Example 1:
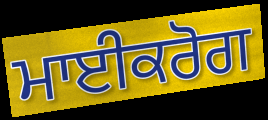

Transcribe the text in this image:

ਮਾਈਕਰੋਗ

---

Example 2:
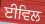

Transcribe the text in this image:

ਈਵਿਲ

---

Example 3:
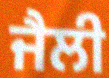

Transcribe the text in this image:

ਜੈਲੀ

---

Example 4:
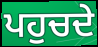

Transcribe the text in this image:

ਪਹੁਚਦੇ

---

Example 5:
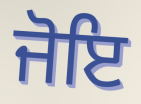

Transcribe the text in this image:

ਜੋਇ